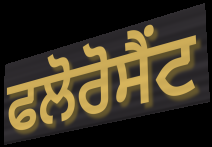
ਫਲੋਰੋਸੈਂਟ